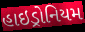
હાઇડ્રોનિયમ